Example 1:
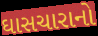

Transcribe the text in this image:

ઘાસચારાનો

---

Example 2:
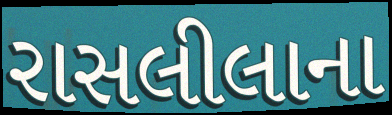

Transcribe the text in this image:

રાસલીલાના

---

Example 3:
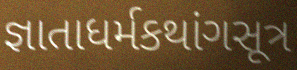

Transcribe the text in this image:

જ્ઞાતાધર્મકથાંગસૂત્ર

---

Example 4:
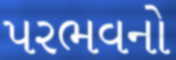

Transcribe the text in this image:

પરભવનો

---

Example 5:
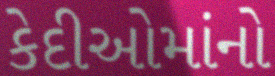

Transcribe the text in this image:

કેદીઓમાંનો